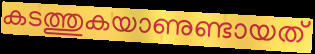
കടത്തുകയാണുണ്ടായത്